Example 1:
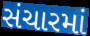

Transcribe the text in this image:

સંચારમાં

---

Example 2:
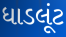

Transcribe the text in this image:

ધાડલૂંટ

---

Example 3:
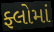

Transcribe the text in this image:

ફ્લોમાં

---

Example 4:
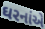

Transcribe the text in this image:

ઘરનાંએ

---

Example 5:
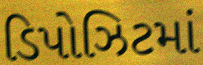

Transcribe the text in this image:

ડિપોઝિટમાં